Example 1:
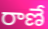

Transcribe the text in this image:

రాణే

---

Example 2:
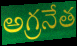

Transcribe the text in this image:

అగ్రనేత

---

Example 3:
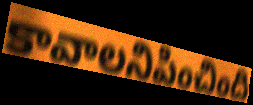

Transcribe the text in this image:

కావాలనిపించింది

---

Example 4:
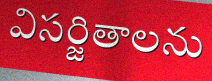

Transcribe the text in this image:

విసర్జితాలను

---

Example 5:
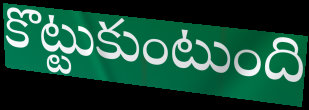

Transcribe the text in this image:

కొట్టుకుంటుంది